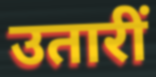
उतारीं